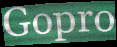
Gopro